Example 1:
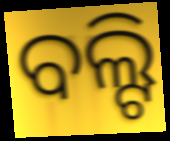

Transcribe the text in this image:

ବଲ୍ଟି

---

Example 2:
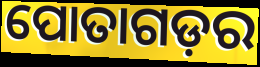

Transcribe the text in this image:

ପୋତାଗଡ଼ର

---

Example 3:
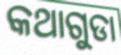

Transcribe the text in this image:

କଥାଗୁଡା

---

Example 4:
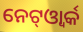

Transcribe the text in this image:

ନେଟ୍ଓ୍ବାର୍କ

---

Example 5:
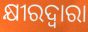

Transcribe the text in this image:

କ୍ଷୀରଦ୍ଵାରା